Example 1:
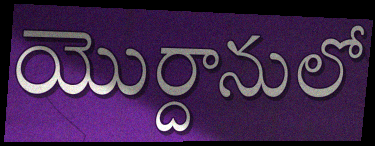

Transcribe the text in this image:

యొర్దానులో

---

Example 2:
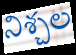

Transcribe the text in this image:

నిశ్చల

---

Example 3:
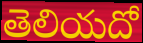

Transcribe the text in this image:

తెలియదో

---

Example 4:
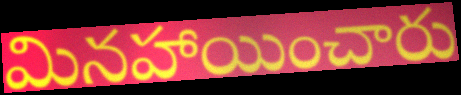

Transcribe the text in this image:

మినహాయించారు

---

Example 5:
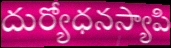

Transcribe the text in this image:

దుర్యోధనస్యాపి